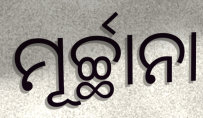
ମୂର୍ଚ୍ଛାନା